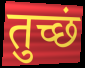
तुच्छं